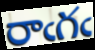
రాఁగఁ